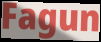
Fagun